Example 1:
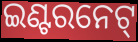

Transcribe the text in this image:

ଇଣ୍ଟରନେଟ୍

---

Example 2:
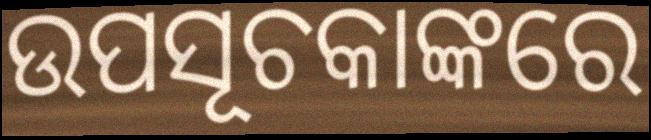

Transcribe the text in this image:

ଉପସୂଚକାଙ୍କରେ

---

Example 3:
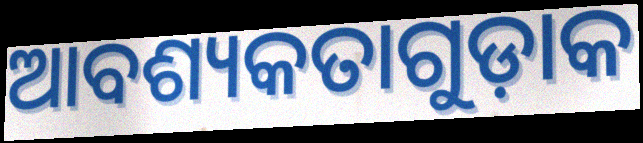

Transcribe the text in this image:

ଆବଶ୍ୟକତାଗୁଡ଼ାକ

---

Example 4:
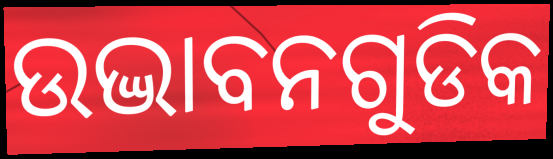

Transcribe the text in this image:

ଉଦ୍ଭାବନଗୁଡିକ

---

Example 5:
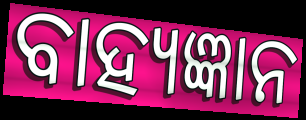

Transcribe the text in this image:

ବାହ୍ୟଜ୍ଞାନ